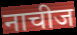
नाचीज